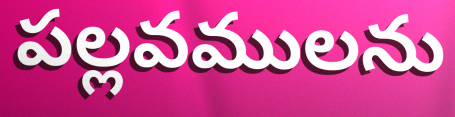
పల్లవములను